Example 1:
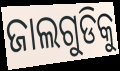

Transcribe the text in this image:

ଜାଲଗୁଡିକୁ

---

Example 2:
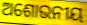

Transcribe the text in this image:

ଅଶୋଭନୀୟ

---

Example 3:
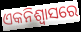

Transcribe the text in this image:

ଏକନିଶ୍ୱାସରେ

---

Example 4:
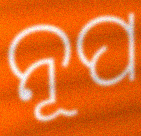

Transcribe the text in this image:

ନୂପ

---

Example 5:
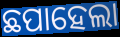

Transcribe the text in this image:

ଛପାହେଲା